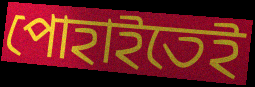
পোহাইতেই